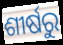
ଶୀର୍ଷରୁ